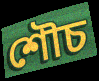
শৌচ